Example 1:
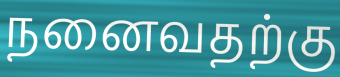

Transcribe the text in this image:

நனைவதற்கு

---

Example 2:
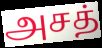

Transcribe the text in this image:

அசத்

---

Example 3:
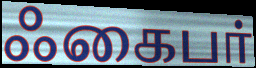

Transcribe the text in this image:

ஃகைபர்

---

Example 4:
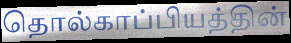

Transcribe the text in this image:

தொல்காப்பியத்தின்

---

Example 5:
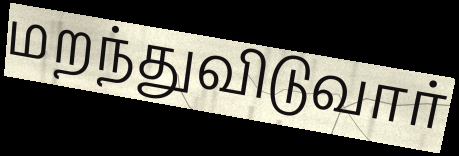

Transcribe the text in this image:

மறந்துவிடுவார்